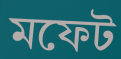
মফেট